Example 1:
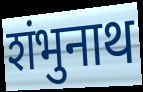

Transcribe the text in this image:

शंभुनाथ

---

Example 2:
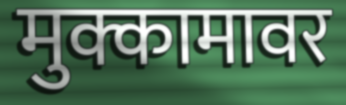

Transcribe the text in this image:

मुक्कामावर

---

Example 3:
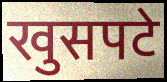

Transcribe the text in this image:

खुसपटे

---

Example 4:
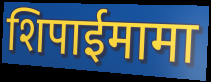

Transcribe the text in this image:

शिपाईमामा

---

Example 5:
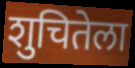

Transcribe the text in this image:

शुचितेला